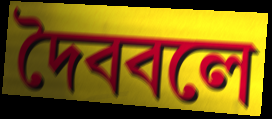
দৈববলে